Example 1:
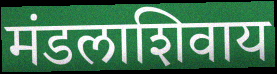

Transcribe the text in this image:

मंडलाशिवाय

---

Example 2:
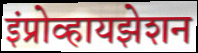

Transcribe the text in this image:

इंप्रोव्हायझेशन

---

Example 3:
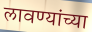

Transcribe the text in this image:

लावण्यांच्या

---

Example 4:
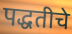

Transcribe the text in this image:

पद्धतीचे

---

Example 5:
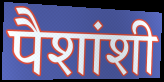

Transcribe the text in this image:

पैशांशी